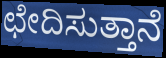
ಛೇದಿಸುತ್ತಾನೆ